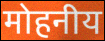
मोहनीय